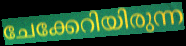
ചേക്കേറിയിരുന്ന